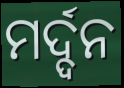
ମର୍ଦ୍ଦନ